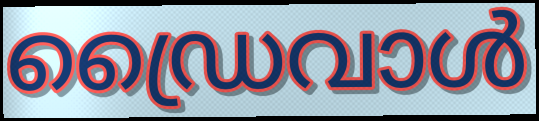
ഡ്രൈവാൾ